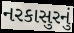
નરકાસુરનું